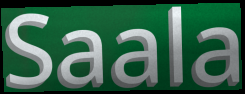
Saala